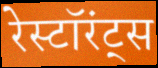
रेस्टॉरंट्‌स